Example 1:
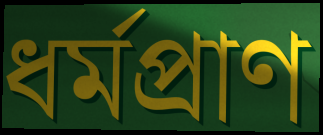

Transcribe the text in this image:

ধর্মপ্রাণ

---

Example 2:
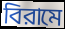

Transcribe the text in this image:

বিরামে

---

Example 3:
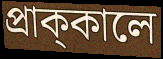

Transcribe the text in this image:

প্রাক্‌কালে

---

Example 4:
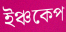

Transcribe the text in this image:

ইঞ্চকেপ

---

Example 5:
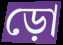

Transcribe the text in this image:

ড়ো